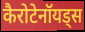
कैरोटेनॉयड्स